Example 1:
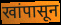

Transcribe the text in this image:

खांपासून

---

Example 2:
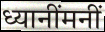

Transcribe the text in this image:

ध्यानींमनीं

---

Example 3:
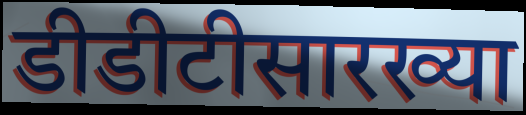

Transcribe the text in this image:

डीडीटीसारख्या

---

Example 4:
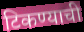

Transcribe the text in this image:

टिकण्याची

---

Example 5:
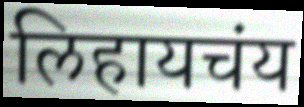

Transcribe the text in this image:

लिहायचंय